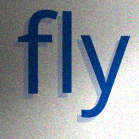
fly